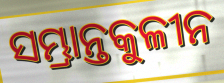
ସମ୍ଭ୍ରାନ୍ତକୁଳୀନ